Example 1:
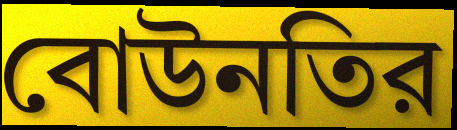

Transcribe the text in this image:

বোউনতির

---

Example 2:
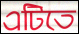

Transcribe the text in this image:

এটিতে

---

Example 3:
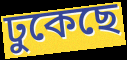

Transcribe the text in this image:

ঢুকেছে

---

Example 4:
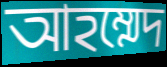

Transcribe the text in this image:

আহম্মেদ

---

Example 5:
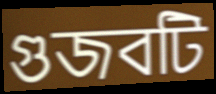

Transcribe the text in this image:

গুজবটি